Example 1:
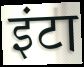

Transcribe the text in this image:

इंटा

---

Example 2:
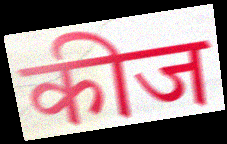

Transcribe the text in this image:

कीज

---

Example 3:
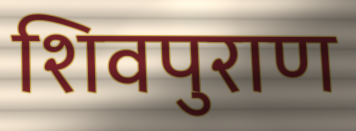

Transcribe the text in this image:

शिवपुराण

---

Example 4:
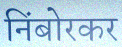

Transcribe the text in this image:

निंबोरकर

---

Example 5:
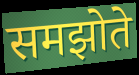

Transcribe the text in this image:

समझोते